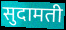
सुदामती